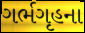
ગર્ભગૃહના